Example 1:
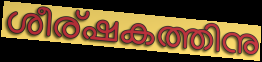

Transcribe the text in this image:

ശീര്ഷകത്തിനു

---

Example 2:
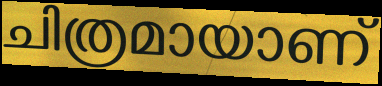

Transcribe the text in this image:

ചിത്രമായാണ്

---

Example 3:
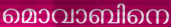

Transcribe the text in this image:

മൊവാബിനെ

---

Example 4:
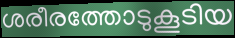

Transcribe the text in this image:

ശരീരത്തോടുകൂടിയ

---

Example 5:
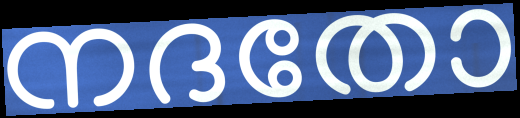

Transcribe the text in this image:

നദതോ